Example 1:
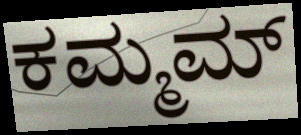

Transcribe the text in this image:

ಕಮ್ಮಮ್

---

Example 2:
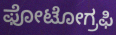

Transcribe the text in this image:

ಫೋಟೋಗ್ರಫಿ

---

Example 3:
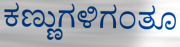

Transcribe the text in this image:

ಕಣ್ಣುಗಳಿಗಂತೂ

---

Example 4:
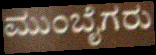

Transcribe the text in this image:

ಮುಂಬೈಗರು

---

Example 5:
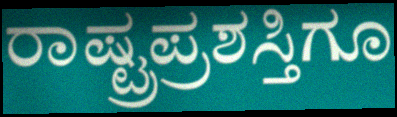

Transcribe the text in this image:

ರಾಷ್ಟ್ರಪ್ರಶಸ್ತಿಗೂ